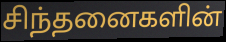
சிந்தனைகளின்